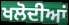
ਖਲੋਦੀਆਂ